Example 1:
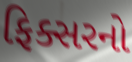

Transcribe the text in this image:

ફિક્સરનો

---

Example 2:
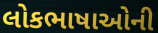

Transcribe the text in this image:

લોકભાષાઓની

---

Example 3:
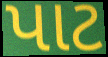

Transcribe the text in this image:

પાટ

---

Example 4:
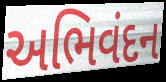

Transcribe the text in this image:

અભિવંદન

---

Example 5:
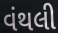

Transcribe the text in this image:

વંથલી